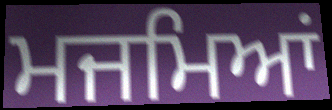
ਮਜਮਿਆਂ